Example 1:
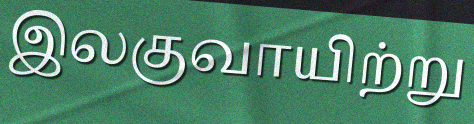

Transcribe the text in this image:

இலகுவாயிற்று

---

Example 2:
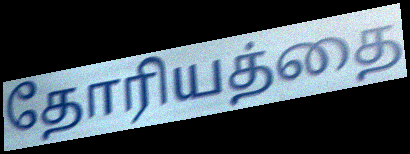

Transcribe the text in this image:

தோரியத்தை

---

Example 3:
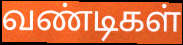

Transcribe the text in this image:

வண்டிகள்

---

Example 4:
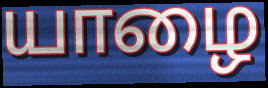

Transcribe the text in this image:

யாழை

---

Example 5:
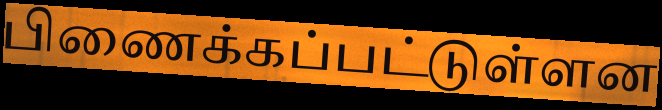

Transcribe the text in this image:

பிணைக்கப்பட்டுள்ளன